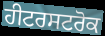
ਹੀਟਰਸਟਰੋਕ